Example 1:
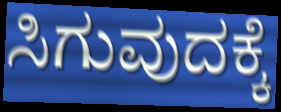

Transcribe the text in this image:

ಸಿಗುವುದಕ್ಕೆ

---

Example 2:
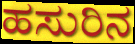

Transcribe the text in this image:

ಹಸುರಿನ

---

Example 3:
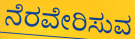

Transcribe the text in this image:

ನೆರವೇರಿಸುವ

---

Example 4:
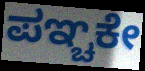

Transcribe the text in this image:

ಪಞ್ಚಕೇ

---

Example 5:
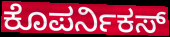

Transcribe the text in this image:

ಕೊಪರ್ನಿಕಸ್